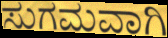
ಸುಗಮವಾಗಿ